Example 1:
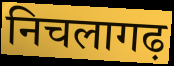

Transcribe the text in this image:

निचलागढ़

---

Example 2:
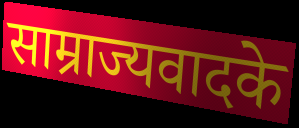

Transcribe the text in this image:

साम्राज्यवादके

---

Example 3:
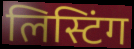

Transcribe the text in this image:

लिस्‍टिंग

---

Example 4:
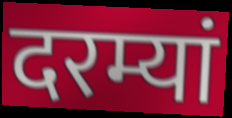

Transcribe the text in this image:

दरम्यां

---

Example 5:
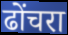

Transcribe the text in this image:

ढोंचरा